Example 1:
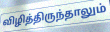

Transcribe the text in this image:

விழித்திருந்தாலும்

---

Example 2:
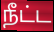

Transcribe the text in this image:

நீட்ட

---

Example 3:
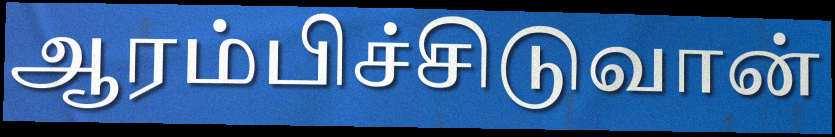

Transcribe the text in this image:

ஆரம்பிச்சிடுவான்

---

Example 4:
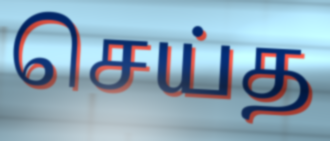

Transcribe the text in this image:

செய்த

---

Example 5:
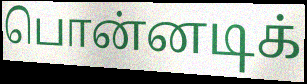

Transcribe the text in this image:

பொன்னடிக்